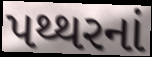
પથ્થરનાં